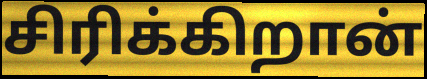
சிரிக்கிறான்